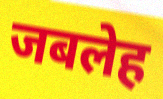
जबलेह